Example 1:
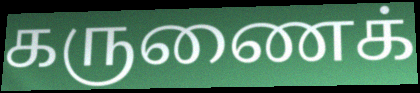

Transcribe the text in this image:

கருணைக்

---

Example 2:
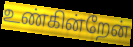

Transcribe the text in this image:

உண்கின்றேன்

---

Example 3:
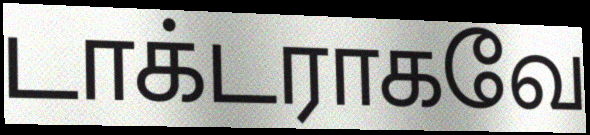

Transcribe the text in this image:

டாக்டராகவே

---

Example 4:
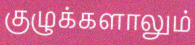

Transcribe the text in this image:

குழுக்களாலும்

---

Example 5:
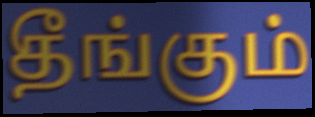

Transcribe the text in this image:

தீங்கும்